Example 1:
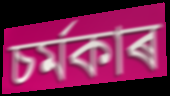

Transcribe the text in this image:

চৰ্মকাৰ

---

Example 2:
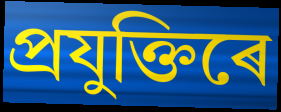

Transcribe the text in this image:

প্ৰযুক্তিৰে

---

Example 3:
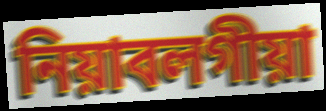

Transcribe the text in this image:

নিয়াবলগীয়া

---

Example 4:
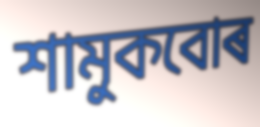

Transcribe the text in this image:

শামুকবোৰ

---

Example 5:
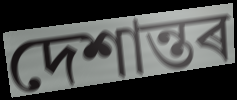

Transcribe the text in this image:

দেশান্তৰ